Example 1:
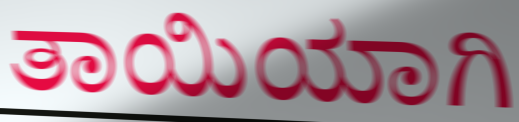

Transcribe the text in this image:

ತಾಯಿಯಾಗಿ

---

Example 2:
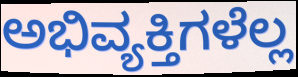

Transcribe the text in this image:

ಅಭಿವ್ಯಕ್ತಿಗಳೆಲ್ಲ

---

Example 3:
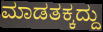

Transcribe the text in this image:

ಮಾಡತಕ್ಕದ್ದು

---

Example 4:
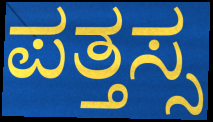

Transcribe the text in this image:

ಪತ್ತಸ್ಸ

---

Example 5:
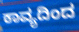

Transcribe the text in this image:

ಕಾವ್ಯದಿಂದ